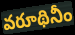
వరూథినీం